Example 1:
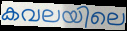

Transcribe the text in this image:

കവലയിലെ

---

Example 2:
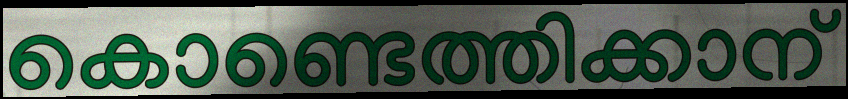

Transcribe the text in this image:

കൊണ്ടെത്തിക്കാന്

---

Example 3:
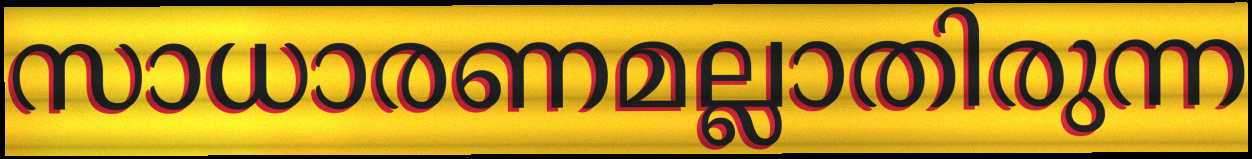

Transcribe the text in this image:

സാധാരണമല്ലാതിരുന്ന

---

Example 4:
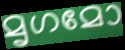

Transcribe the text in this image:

മൃഗമോ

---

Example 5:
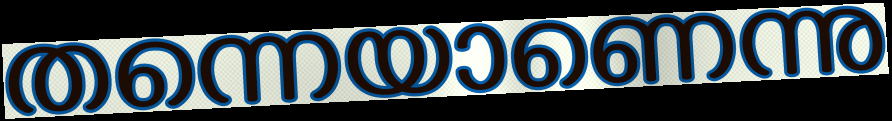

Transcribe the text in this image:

തന്നെയാണെന്നു